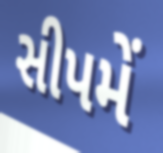
સીપમેં